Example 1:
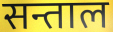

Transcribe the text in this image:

सन्ताल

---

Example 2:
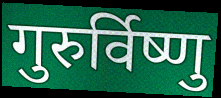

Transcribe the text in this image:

गुरुर्विष्णु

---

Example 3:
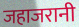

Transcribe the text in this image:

जहाजरानी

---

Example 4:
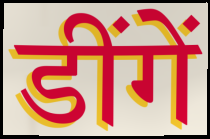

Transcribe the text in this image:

डींगें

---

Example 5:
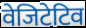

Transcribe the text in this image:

वेजिटेटिव